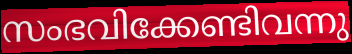
സംഭവിക്കേണ്ടിവന്നു